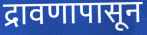
द्रावणापासून